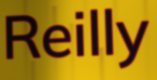
Reilly